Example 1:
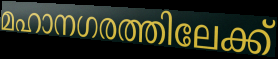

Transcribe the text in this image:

മഹാനഗരത്തിലേക്ക്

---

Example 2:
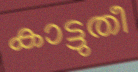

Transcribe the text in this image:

കാട്ടുതീ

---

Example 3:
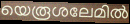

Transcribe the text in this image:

യെരൂശലേമിൽ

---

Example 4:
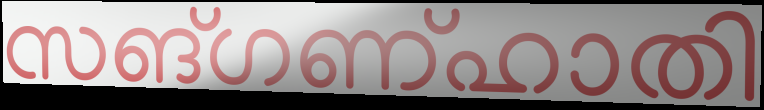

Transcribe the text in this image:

സങ്ഗണ്ഹാതി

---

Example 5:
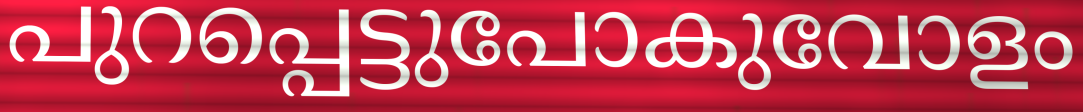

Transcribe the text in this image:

പുറപ്പെട്ടുപോകുവോളം